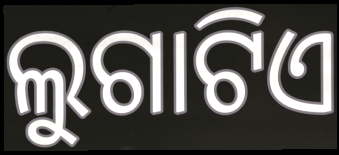
ଲୁଗାଟିଏ